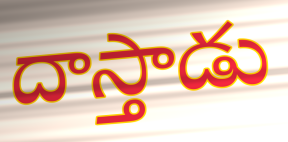
దాస్తాడు